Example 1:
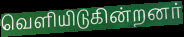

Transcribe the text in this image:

வெளியிடுகின்றனர்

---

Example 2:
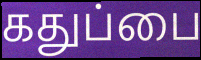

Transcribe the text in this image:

கதுப்பை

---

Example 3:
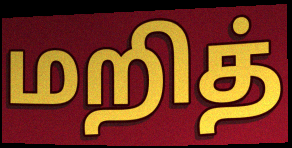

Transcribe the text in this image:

மறித்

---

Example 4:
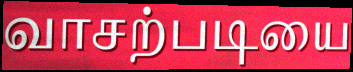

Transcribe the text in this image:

வாசற்படியை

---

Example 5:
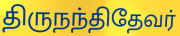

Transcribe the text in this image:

திருநந்திதேவர்